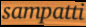
sampatti